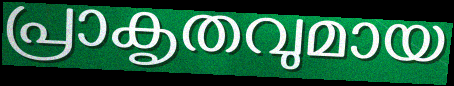
പ്രാകൃതവുമായ